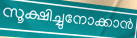
സൂക്ഷിച്ചുനോക്കാൻ